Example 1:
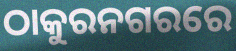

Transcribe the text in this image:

ଠାକୁରନଗରରେ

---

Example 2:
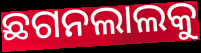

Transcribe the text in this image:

ଛଗନଲାଲକୁ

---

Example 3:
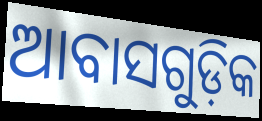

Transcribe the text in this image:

ଆବାସଗୁଡ଼ିକ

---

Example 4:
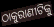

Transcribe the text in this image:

ଠାକୁରାଣୀଟିକୁ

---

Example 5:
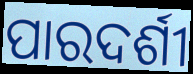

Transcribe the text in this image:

ପାରଦର୍ଶୀ